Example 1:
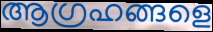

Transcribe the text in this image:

ആഗ്രഹങ്ങളെ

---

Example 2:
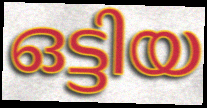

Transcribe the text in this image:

ഒട്ടിയ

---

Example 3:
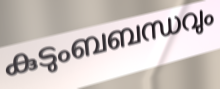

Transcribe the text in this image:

കുടുംബബന്ധവും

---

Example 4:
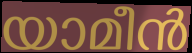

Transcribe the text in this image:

യാമീൻ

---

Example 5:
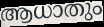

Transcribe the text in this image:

ആധാതും